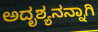
ಅದೃಶ್ಯನನ್ನಾಗಿ